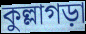
কুল্লাগড়া